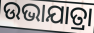
ଉଭାଯାତ୍ରା